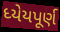
ધ્યેયપૂર્ણ